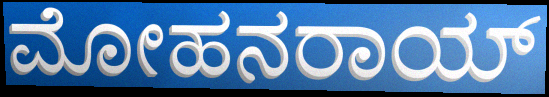
ಮೋಹನರಾಯ್